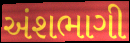
અંશભાગી